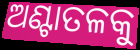
ଅଣ୍ଟାତଳକୁ